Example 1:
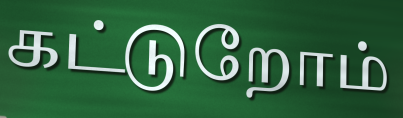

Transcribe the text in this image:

கட்டுறோம்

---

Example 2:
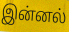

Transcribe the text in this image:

இன்னல்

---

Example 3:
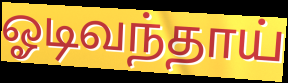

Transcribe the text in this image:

ஓடிவந்தாய்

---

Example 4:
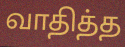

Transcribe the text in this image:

வாதித்த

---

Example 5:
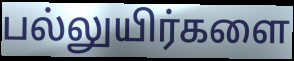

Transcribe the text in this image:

பல்லுயிர்களை